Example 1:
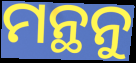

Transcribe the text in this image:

ମନ୍ଥନୁ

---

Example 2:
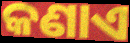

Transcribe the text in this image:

କଣାଏ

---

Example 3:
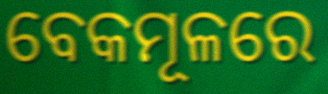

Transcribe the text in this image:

ବେକମୂଳରେ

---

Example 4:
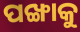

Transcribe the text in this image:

ପଙ୍ଖାକୁ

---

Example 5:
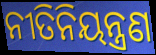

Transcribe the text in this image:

ନୀତିନିୟନ୍ତ୍ରଣ